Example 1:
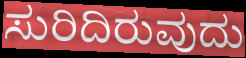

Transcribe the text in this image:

ಸುರಿದಿರುವುದು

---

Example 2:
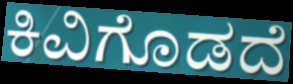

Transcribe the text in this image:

ಕಿವಿಗೊಡದೆ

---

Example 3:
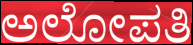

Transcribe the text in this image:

ಅಲೋಪತಿ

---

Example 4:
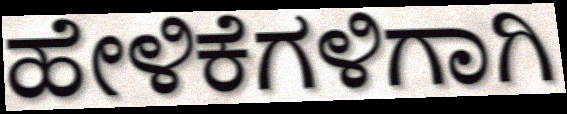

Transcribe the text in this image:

ಹೇಳಿಕೆಗಳಿಗಾಗಿ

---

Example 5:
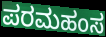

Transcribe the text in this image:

ಪರಮಹಂಸ